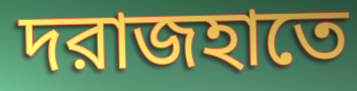
দরাজহাতে